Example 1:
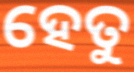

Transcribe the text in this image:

ହେତୁ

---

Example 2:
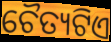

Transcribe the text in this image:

ଚୈତ୍ୟଟିଏ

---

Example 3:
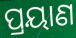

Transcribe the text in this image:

ପ୍ରୟାଣ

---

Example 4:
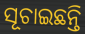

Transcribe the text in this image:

ସୂଚାଇଛନ୍ତି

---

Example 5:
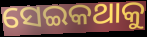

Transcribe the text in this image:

ସେଇକଥାକୁ